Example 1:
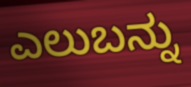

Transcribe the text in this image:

ಎಲುಬನ್ನು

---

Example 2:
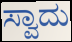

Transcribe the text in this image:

ಸ್ವಾದು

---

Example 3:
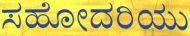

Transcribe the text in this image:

ಸಹೋದರಿಯು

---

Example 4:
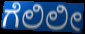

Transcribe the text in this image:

ಗೆಲಿಲೀ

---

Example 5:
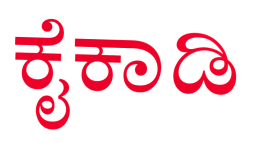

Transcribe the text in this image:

ಕೈಕಾಡಿ